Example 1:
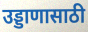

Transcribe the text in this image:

उड्डाणासाठी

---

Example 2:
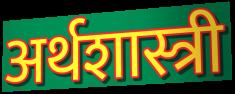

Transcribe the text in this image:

अर्थशास्त्री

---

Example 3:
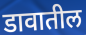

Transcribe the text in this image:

डावातील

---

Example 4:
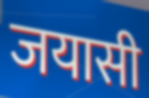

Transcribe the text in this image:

जयासी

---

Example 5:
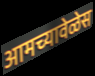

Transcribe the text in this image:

आमच्यावेळेस